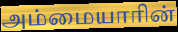
அம்மையாரின்